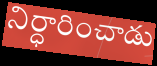
నిర్ధారించాడు